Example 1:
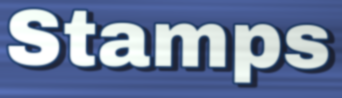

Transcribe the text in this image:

Stamps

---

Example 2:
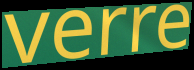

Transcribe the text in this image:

verre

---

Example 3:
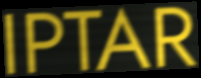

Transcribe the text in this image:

IPTAR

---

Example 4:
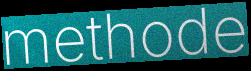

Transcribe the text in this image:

methode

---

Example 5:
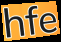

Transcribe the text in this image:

hfe